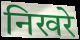
निखरे